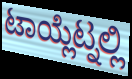
ಟಾಯ್ಲೆಟ್ನಲ್ಲಿ